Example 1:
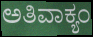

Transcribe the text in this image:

ಅತಿವಾಕ್ಯಂ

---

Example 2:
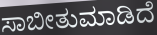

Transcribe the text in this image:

ಸಾಬೀತುಮಾಡಿದೆ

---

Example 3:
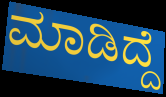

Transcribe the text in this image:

ಮಾಡಿದ್ದೆ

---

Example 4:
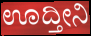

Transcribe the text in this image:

ಊದ್ತೀನಿ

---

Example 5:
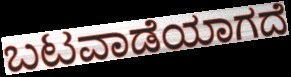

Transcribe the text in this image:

ಬಟವಾಡೆಯಾಗದೆ